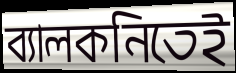
ব্যালকনিতেই